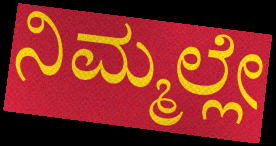
ನಿಮ್ಮಲ್ಲೇ